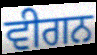
ਵੀਗਨ